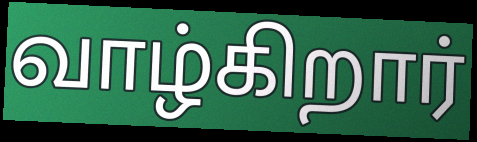
வாழ்கிறார்